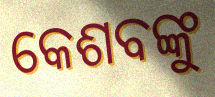
କେଶବଙ୍କୁ